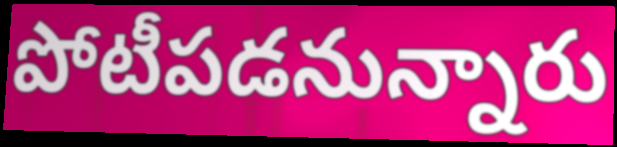
పోటీపడనున్నారు